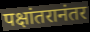
पक्षांतरानंतर